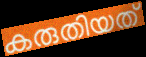
കരുതിയത്